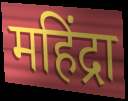
महिंद्रा